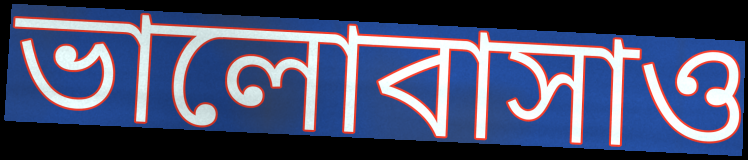
ভালোবাসাও